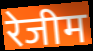
रेजीम